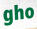
gho